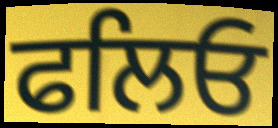
ਫਲਿਓ